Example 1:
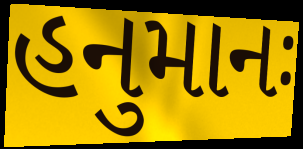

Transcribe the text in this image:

હનુમાનઃ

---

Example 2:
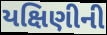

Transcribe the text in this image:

યક્ષિણીની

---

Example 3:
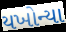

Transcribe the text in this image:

યખોન્યા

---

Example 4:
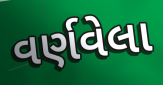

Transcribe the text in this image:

વર્ણવેલા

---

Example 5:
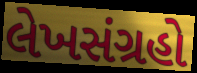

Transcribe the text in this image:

લેખસંગ્રહો